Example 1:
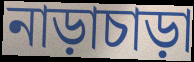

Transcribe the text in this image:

নাড়াচাড়া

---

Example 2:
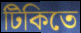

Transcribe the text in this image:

টিকিতে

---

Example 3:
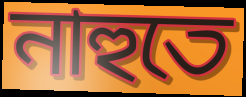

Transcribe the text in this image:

নাহুতে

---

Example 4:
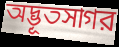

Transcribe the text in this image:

অদ্ভূতসাগর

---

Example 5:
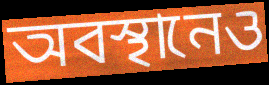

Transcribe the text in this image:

অবস্থানেও